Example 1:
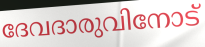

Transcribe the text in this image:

ദേവദാരുവിനോട്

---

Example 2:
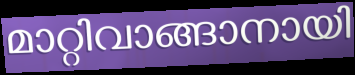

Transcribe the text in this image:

മാറ്റിവാങ്ങാനായി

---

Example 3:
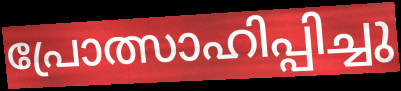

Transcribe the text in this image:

പ്രോത്സാഹിപ്പിച്ചു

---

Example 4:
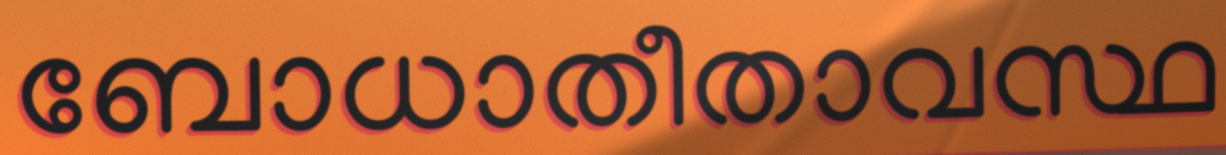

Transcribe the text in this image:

ബോധാതീതാവസ്ഥ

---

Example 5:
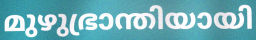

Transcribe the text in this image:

മുഴുഭ്രാന്തിയായി